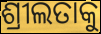
ଶ୍ରୀଲତାକୁ